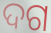
ଦଗ